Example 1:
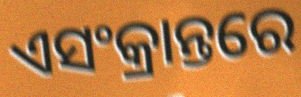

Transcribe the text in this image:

ଏସଂକ୍ରାନ୍ତରେ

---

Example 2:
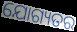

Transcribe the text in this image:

ଯୋଗ୍ୟତର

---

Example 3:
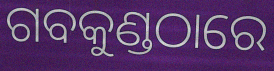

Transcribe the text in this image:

ଗବକୁଣ୍ଡଠାରେ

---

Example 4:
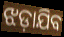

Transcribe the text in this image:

ଝଡ଼ାଯିବ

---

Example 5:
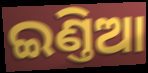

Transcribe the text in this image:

ଇଣ୍ତିଆ